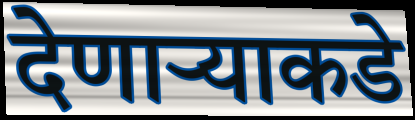
देणाऱ्याकडे